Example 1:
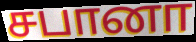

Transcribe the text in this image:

சபானா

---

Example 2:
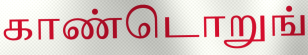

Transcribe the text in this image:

காண்டொறுங்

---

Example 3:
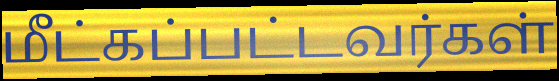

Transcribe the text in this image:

மீட்கப்பட்டவர்கள்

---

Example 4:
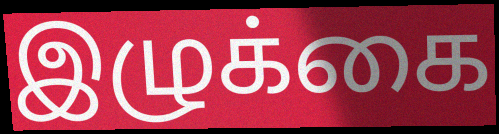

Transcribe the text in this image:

இழுக்கை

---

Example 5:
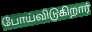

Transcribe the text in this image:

போய்விடுகிறார்